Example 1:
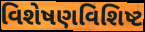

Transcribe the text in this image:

વિશેષણવિશિષ્ટ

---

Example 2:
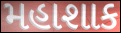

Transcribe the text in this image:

મહાશાક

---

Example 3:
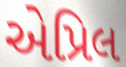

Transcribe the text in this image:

એપ્રિલ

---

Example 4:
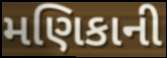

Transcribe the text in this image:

મણિકાની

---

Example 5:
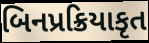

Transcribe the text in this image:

બિનપ્રક્રિયાકૃત